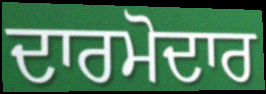
ਦਾਰਮੋਦਾਰ